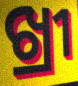
ଖ୍ରୀ